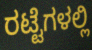
ರಟ್ಟೆಗಳಲ್ಲಿ